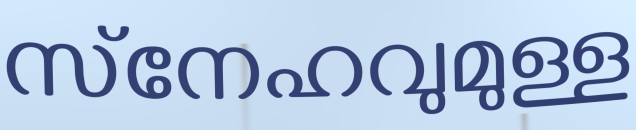
സ്‌നേഹവുമുള്ള